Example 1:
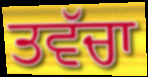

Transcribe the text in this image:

ਤਵੱਚਾ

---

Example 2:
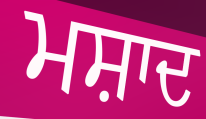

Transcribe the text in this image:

ਮਸ਼ਾਦ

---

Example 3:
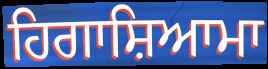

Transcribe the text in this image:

ਹਿਗਾਸ਼ਿਆਮਾ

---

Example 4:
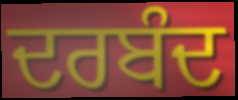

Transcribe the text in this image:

ਦਰਬੰਦ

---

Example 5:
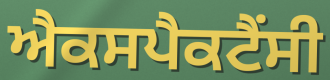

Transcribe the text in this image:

ਐਕਸਪੈਕਟੈਂਸੀ